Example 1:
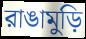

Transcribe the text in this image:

রাঙামুড়ি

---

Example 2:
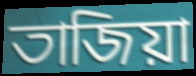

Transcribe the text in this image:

তাজিয়া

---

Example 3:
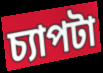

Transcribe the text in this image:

চ্যাপটা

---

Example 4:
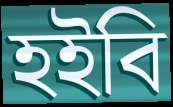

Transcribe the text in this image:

হইবি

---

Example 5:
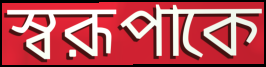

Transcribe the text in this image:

স্বরূপাকে